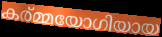
കര്മ്മയോഗിയായ